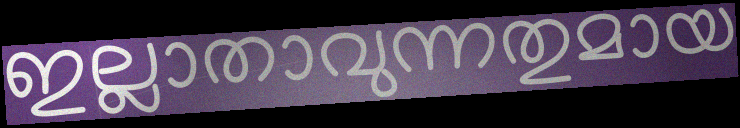
ഇല്ലാതാവുന്നതുമായ